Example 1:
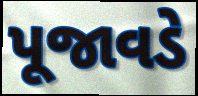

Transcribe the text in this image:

પૂજાવડે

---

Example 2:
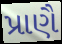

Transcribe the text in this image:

પ્રાણૈ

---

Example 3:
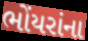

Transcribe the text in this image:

ભોંયરાંના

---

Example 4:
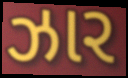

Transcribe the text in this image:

ઝાર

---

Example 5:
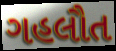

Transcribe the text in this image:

ગહલૌત